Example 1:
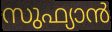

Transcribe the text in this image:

സുഫ്യാൻ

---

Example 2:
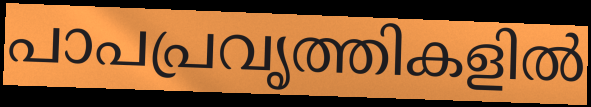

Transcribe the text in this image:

പാപപ്രവൃത്തികളിൽ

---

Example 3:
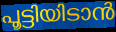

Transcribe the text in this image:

പൂട്ടിയിടാൻ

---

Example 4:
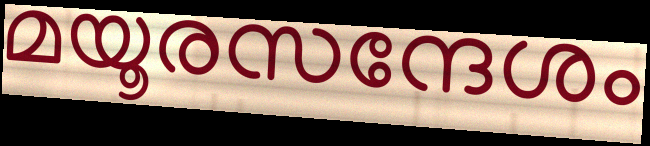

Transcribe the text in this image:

മയൂരസന്ദേശം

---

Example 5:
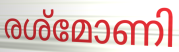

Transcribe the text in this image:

രശ്മോണി